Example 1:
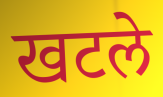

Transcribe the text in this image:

खटले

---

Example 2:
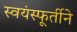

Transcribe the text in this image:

स्वयंस्फूर्तीने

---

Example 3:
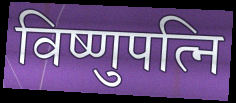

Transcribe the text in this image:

विष्णुपत्नि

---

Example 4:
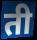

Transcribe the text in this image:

ती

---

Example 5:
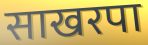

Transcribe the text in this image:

साखरपा